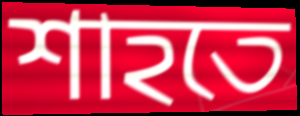
শাহতে